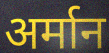
अर्मान